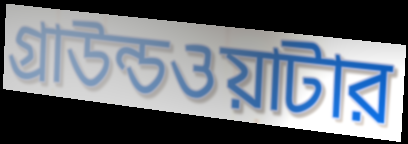
গ্রাউন্ডওয়াটার